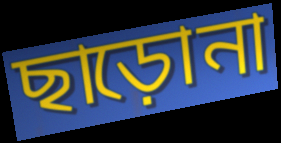
ছাড়োনা